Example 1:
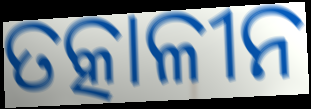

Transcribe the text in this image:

ତତ୍କାଳୀନ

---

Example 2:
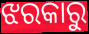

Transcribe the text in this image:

ଝରକାରୁ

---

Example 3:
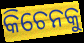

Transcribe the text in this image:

କିଚେନକୁ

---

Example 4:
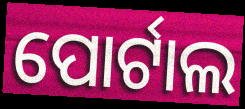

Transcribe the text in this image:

ପୋର୍ଟାଲ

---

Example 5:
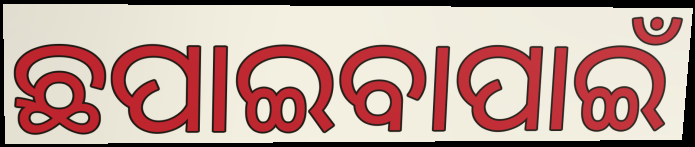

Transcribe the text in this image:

ଛପାଇବାପାଇଁ